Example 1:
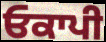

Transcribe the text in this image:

ਓਕਾਪੀ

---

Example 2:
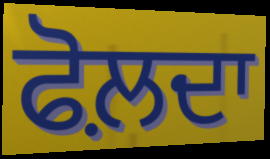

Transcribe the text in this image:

ਫੋਲ਼ਦਾ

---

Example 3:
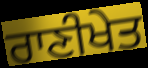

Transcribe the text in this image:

ਰਾਣੀਖੇਤ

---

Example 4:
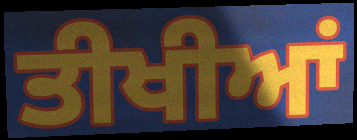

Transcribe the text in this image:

ਤੀਖੀਆਂ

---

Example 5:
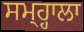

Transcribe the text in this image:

ਸਮ੍ਹ੍ਹਾਲਾ